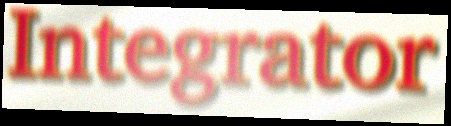
Integrator